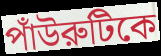
পাঁউরুটিকে